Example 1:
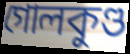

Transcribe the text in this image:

গোলকুণ্ড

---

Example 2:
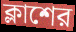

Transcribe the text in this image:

ক্লাশের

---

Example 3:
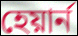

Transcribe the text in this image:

হেয়ার্ন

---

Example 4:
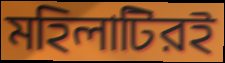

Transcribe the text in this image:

মহিলাটিরই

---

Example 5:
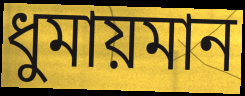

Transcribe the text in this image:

ধুমায়মান